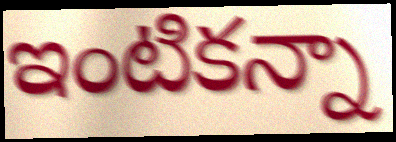
ఇంటికన్నా